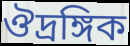
ঔদ্রঙ্গিক